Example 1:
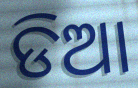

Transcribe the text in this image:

ଡିଆ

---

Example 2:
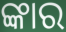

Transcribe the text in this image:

ଙ୍କାର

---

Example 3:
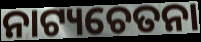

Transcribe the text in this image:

ନାଟ୍ୟଚେତନା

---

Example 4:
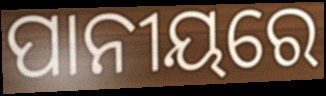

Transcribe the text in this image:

ପାନୀୟରେ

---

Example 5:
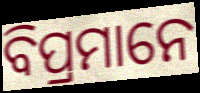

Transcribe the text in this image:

ବିପ୍ରମାନେ